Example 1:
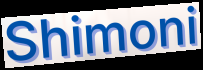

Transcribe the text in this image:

Shimoni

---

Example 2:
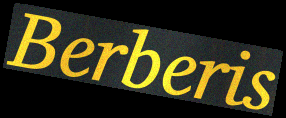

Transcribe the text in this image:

Berberis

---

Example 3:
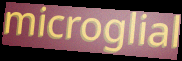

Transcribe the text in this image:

microglial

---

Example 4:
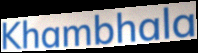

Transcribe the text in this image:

Khambhala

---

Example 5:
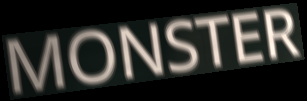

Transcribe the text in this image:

MONSTER